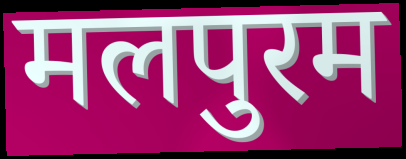
मलपुरम